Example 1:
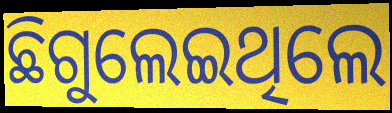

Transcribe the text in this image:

ଛିଗୁଲେଇଥିଲେ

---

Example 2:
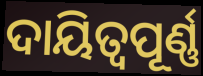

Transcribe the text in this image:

ଦାୟିତ୍ୱପୂର୍ଣ୍ଣ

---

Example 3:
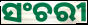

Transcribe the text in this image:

ସଂଚରୀ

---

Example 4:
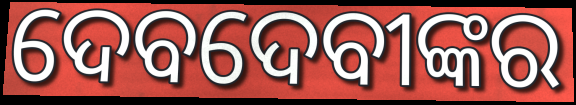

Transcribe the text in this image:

ଦେବଦେବୀଙ୍କର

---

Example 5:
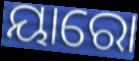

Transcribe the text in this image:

ୟାରୋ